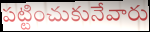
పట్టించుకునేవారు